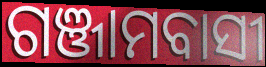
ଗଞ୍ଜାମବାସୀ